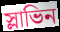
স্লাভিন